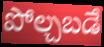
పోల్చబడే